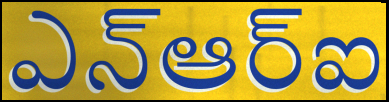
ఎన్ఆర్ఐ